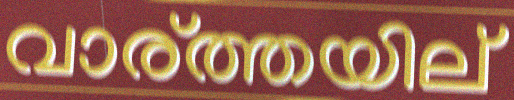
വാര്ത്തയില്